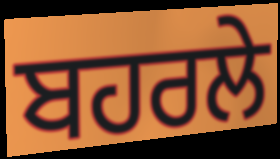
ਬਹਰਲੇ